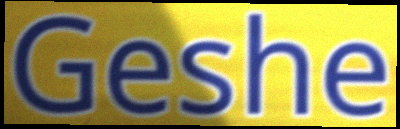
Geshe